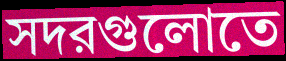
সদরগুলোতে